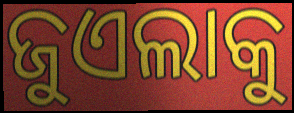
ଜୁଏଲାକୁ